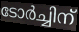
ടോർച്ചിന്